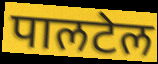
पालटेल